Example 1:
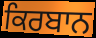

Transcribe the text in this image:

ਕਿਰਬਾਨ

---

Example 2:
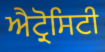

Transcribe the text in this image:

ਐਟ੍ਰੋਸਿਟੀ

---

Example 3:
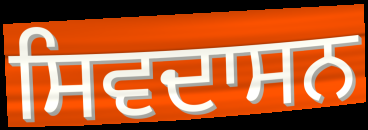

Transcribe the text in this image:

ਸਿਵਦਾਸਨ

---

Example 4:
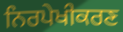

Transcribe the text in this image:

ਨਿਰਪੇਖੀਕਰਣ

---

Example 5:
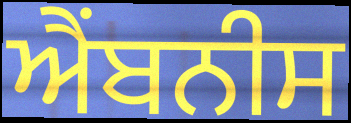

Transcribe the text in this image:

ਐਂਬਨੀਸ